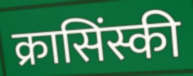
क्रासिंस्की